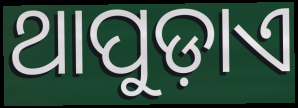
ଥାପୁଡ଼ାଏ